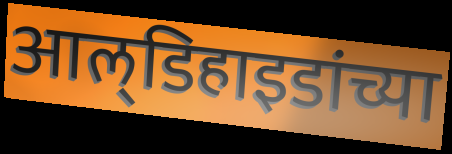
आल्डिहाइडांच्या